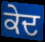
ਕੇਦ